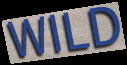
WILD